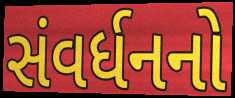
સંવર્ધનનો